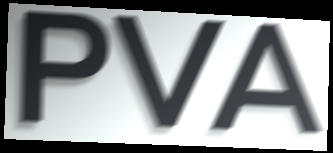
PVA